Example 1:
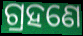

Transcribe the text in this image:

ଗ୍ରହଣେ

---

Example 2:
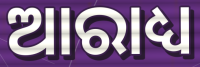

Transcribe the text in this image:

ଆରାଧ୍ୟ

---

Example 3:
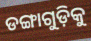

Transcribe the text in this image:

ଡଙ୍ଗାଗୁଡ଼ିକୁ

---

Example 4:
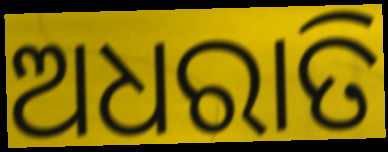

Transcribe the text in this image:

ଅଧରାତି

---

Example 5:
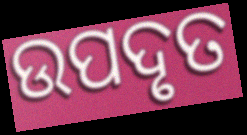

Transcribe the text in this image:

ଉପଦୃତ